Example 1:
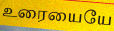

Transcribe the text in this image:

உரையையே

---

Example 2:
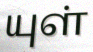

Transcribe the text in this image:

யுள்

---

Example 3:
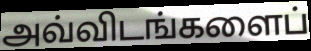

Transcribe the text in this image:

அவ்விடங்களைப்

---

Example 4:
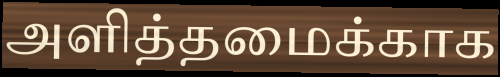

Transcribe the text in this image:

அளித்தமைக்காக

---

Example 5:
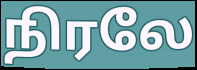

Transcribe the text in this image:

நிரலே